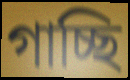
গাচ্ছি